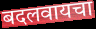
बदलवायचा